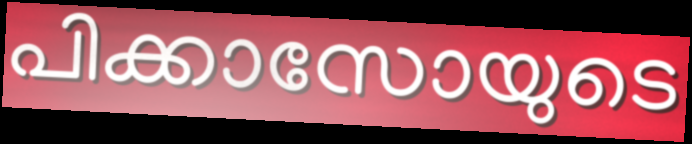
പിക്കാസോയുടെ